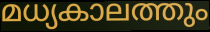
മധ്യകാലത്തും